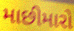
માછીમારો